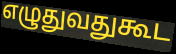
எழுதுவதுகூட